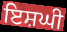
ਇਸ਼ਘੀ